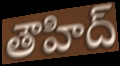
తౌహిద్